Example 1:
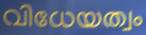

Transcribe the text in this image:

വിധേയത്വം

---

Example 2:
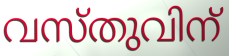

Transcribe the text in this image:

വസ്തുവിന്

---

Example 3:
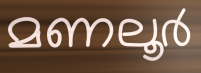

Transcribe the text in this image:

മണലൂർ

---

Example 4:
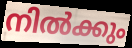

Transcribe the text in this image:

നിൽക്കും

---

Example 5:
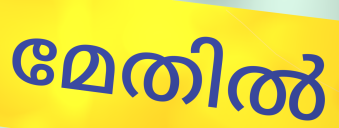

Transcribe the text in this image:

മേതിൽ